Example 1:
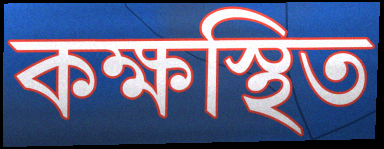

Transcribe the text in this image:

কক্ষস্থিত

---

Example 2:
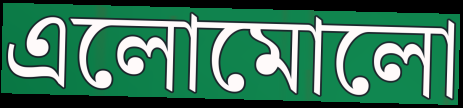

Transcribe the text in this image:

এলোমোলো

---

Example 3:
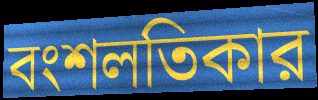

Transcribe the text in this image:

বংশলতিকার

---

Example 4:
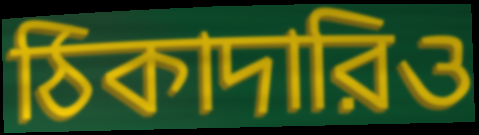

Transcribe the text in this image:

ঠিকাদারিও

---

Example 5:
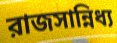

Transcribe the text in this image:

রাজসান্নিধ্য